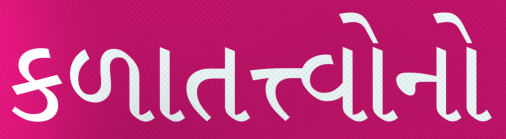
કળાતત્ત્વોનો